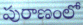
పురాణంలో